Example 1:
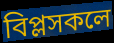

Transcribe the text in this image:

বিপ্লসকলে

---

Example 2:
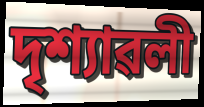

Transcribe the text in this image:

দৃশ্যাৱলী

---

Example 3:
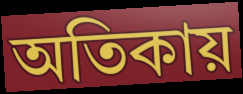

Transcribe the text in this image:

অতিকায়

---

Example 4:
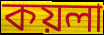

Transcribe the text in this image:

কয়লা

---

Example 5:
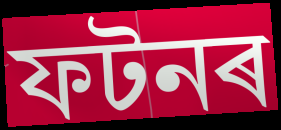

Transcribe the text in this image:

ফটনৰ